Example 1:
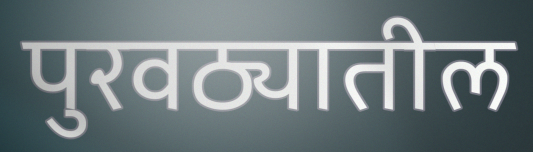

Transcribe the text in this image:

पुरवठ्यातील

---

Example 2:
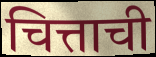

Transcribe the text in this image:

चित्ताची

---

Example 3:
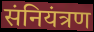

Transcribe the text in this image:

संनियंत्रण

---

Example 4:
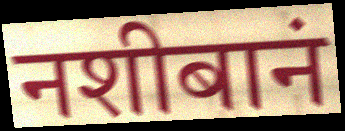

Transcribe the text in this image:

नशीबानं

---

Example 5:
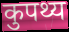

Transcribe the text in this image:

कुपथ्य